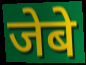
जेबे